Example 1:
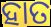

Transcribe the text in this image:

ହାତ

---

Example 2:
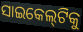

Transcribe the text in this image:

ସାଇକେଲ୍‌ଟିକୁ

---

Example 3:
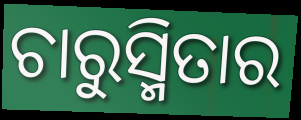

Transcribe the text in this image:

ଚାରୁସ୍ମିତାର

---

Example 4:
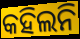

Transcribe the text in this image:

କହିଲନି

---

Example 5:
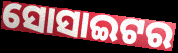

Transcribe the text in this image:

ସୋସାଇଟର